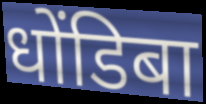
धोंडिबा